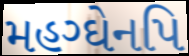
મહગ્ઘેનપિ